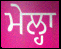
ਮੇਲ੍ਹਾ